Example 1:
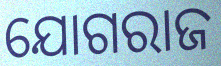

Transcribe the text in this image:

ଯୋଗରାଜ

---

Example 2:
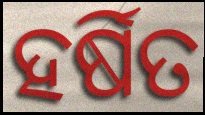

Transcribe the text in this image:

ହର୍ଷିତ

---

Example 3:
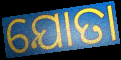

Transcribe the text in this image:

ଯୋତା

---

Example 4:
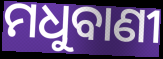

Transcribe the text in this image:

ମଧୁବାଣୀ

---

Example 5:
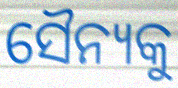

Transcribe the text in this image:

ସୈନ୍ୟକୁ